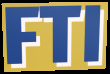
FTI